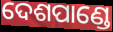
ଦେଶପାଣ୍ଡେ